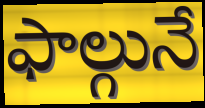
ఫాల్గునే